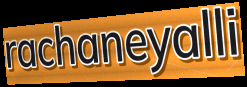
rachaneyalli